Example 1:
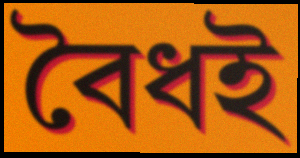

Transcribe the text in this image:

বৈধই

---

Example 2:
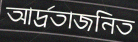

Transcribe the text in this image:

আর্দ্রতাজনিত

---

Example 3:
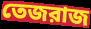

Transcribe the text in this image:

তেজরাজ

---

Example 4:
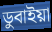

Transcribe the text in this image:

ডুবাইয়া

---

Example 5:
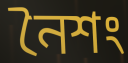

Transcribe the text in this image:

নৈশং